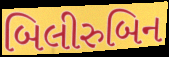
બિલીરુબિન